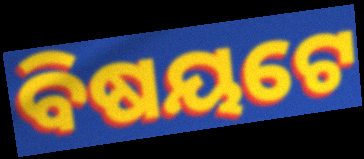
ବିଷୟଟେ